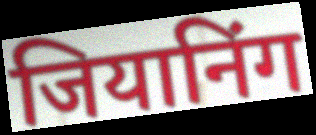
जियानिंग